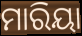
ମାରିୟା